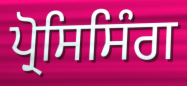
ਪ੍ਰੋਸਿਸਿੰਗ